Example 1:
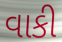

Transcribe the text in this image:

વાકી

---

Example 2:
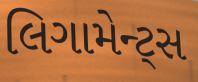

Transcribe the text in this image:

લિગામેન્ટ્સ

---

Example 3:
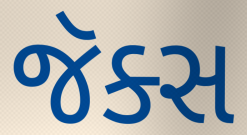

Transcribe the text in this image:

જૅક્સ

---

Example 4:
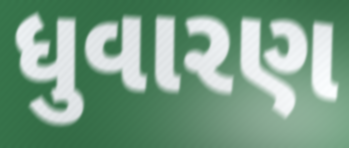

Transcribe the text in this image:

ધુવારણ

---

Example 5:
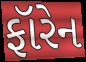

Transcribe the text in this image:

ફૉરેન